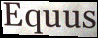
Equus